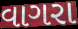
વાગરા